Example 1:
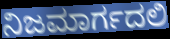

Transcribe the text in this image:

ನಿಜಮಾರ್ಗದಲಿ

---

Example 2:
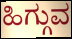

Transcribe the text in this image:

ಹಿಗ್ಗುವ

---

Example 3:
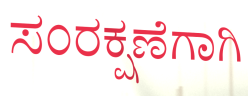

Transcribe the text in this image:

ಸಂರಕ್ಷಣೆಗಾಗಿ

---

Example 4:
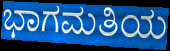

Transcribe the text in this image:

ಭಾಗಮತಿಯ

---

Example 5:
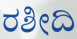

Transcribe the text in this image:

ರಶೀದಿ